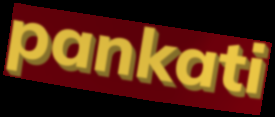
pankati